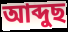
আব্দুছ